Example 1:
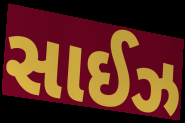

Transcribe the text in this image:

સાઈઝ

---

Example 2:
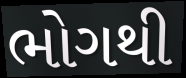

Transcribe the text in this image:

ભોગથી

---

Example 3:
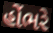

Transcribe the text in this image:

હોંભરે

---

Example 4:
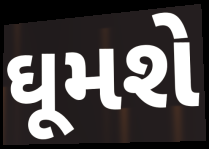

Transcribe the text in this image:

ઘૂમશે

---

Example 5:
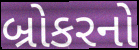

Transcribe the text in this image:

બ્રોકરનો